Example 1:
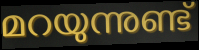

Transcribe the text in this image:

മറയുന്നുണ്ട്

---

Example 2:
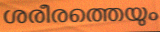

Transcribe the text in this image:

ശരീരത്തെയും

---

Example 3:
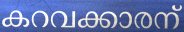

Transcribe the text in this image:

കറവക്കാരന്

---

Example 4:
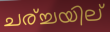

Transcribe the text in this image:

ചര്ച്ചയില്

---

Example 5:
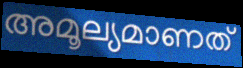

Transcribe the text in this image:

അമൂല്യമാണത്